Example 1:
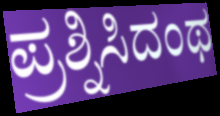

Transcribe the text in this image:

ಪ್ರಶ್ನಿಸಿದಂಥ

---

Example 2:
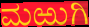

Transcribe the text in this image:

ಮಱುಗಿ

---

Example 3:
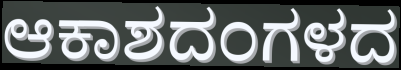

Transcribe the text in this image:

ಆಕಾಶದಂಗಳದ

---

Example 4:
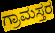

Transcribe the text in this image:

ಗ್ರಾಮಸ್ತರ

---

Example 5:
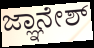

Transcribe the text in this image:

ಜ್ಞಾನೇಶ್